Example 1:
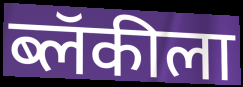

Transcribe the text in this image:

ब्लॅकीला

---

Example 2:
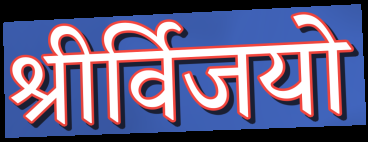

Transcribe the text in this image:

श्रीर्विजयो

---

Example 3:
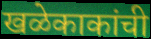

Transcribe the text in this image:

खळेकाकांची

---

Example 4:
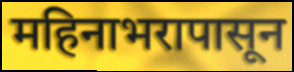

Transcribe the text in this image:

महिनाभरापासून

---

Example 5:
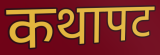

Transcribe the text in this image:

कथापट